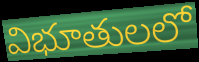
విభూతులలో